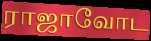
ராஜாவோட